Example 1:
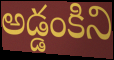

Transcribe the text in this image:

అడ్డంకిని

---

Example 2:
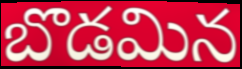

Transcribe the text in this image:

బొడమిన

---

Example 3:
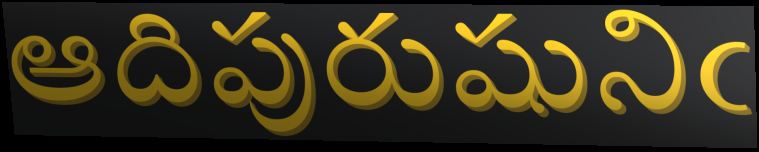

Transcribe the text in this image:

ఆదిపురుషునిఁ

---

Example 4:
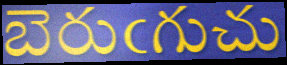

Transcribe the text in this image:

బెరుఁగుచు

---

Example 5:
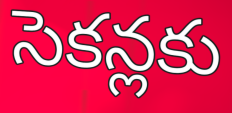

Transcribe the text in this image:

సెకన్లకు